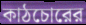
কাঠচোরের